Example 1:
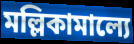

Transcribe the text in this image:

মল্লিকামাল্যে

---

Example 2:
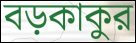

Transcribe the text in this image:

বড়কাকুর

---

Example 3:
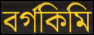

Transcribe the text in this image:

বর্গকিমি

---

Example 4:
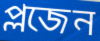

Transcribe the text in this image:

প্লজেন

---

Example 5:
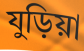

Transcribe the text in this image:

যুড়িয়া